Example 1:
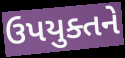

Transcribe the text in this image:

ઉપયુક્તને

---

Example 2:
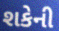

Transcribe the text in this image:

શકેની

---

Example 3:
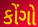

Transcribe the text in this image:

કોંગો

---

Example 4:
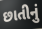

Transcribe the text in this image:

છાતીનું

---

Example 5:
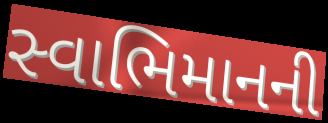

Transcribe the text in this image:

સ્વાભિમાનની